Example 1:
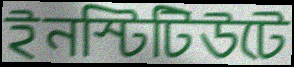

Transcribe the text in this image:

ইনস্টিটিউটে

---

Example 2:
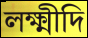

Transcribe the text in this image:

লক্ষ্মীদি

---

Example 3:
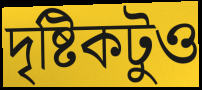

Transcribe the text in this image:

দৃষ্টিকটুও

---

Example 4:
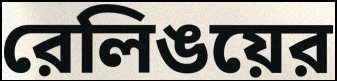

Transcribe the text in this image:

রেলিঙয়ের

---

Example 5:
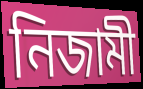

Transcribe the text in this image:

নিজামী